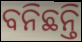
ବନିଛନ୍ତି